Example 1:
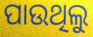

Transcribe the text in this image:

ପାଉଥିଲୁ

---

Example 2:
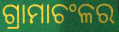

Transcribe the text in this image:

ଗ୍ରାମାଚଂଳର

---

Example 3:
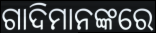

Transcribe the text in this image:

ଗାଦିମାନଙ୍କରେ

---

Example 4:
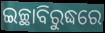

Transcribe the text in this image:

ଇଚ୍ଛାବିରୁଦ୍ଧରେ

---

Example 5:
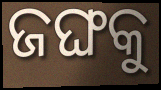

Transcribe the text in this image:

ଜଙ୍ଘକୁ